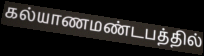
கல்யாணமண்டபத்தில்